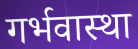
गर्भवास्था